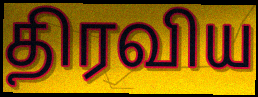
திரவிய